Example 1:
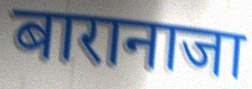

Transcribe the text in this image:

बारानाजा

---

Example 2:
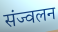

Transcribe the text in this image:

संज्वलन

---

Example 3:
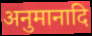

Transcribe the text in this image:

अनुमानादि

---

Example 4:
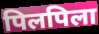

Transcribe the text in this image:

पिलपिला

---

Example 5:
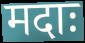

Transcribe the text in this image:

मदाः